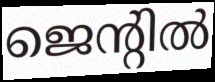
ജെന്റിൽ